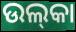
ଉଲ୍‌କା